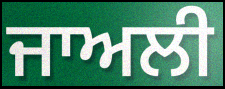
ਜਾਅਲੀ